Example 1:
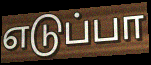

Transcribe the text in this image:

எடுப்பா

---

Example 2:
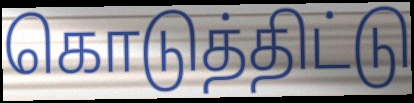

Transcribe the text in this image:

கொடுத்திட்டு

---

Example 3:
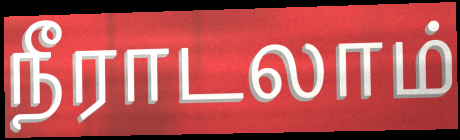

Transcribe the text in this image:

நீராடலாம்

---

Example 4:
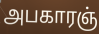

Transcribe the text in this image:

அபகாரஞ்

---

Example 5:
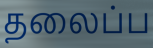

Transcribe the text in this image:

தலைப்ப